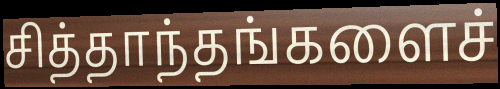
சித்தாந்தங்களைச்